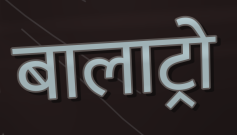
बालाट्रो